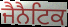
ਜੈਨੈਟਿਕ